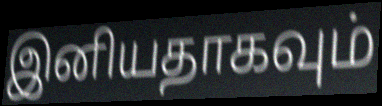
இனியதாகவும்